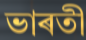
ভাৰতী